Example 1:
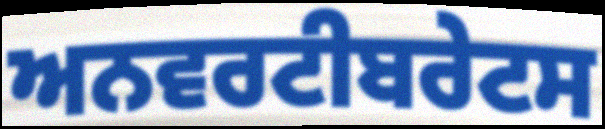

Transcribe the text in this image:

ਅਨਵਰਟੀਬਰੇਟਸ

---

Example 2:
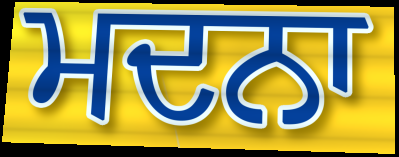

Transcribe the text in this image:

ਮਦਨਾ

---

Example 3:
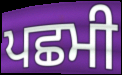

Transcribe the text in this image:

ਪਛਮੀ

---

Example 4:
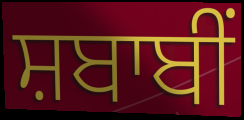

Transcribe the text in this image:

ਸ਼ਬਾਬੀਂ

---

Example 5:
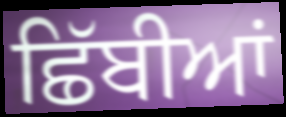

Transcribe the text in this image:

ਛਿੱਬੀਆਂ